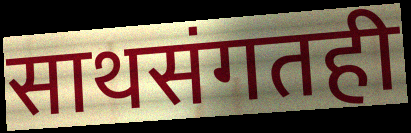
साथसंगतही